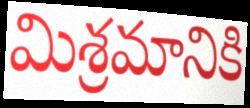
మిశ్రమానికి